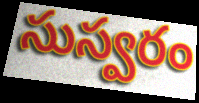
సుస్వరం